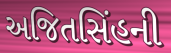
અજિતસિંહની